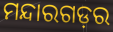
ମନ୍ଦାରଗଡ଼ର